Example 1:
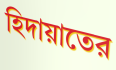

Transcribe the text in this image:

হিদায়াতের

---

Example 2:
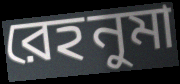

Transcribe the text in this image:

রেহনুমা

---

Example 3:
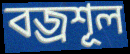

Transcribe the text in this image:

বজ্রশূল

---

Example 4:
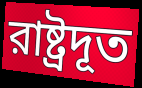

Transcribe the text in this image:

রাষ্ট্রদূত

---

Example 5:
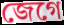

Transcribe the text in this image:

জেগে